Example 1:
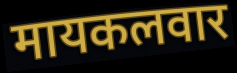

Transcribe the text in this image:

मायकलवार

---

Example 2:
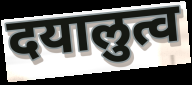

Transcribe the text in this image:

दयालुत्व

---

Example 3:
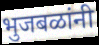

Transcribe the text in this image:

भुजबळांनी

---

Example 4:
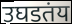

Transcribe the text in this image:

उघडतंय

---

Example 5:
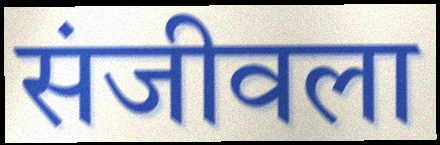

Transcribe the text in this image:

संजीवला